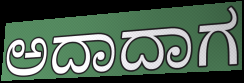
ಅದಾದಾಗ